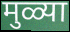
मुळ्या